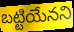
బట్టియేనని